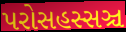
પરોસહસ્સઞ્ચ